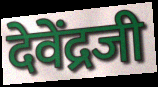
देवेंद्रजी